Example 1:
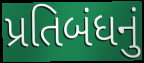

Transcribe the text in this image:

પ્રતિબંધનું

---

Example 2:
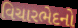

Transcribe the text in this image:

વિચારભેદનો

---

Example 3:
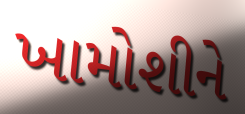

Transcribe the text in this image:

ખામોશીને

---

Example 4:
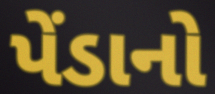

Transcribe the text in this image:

પેંડાનો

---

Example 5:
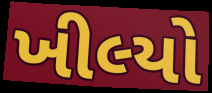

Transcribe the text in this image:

ખીલ્યો